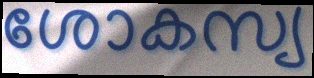
ശോകസ്യ